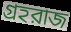
গ্রহরাজ